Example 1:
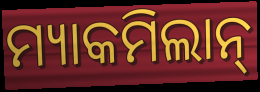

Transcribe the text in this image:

ମ୍ୟାକମିଲାନ୍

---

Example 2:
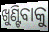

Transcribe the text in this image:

ଖୁଣ୍ଟିବାକୁ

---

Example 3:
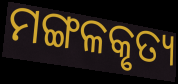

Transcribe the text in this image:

ମଙ୍ଗଳକୃତ୍ୟ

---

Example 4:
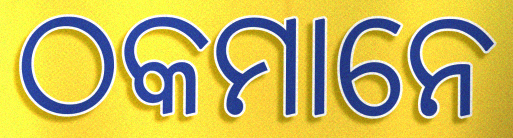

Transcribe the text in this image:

ଠକମାନେ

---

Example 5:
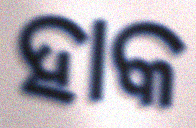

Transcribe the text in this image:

ହାକ